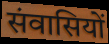
संवासियों